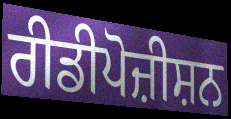
ਰੀਡੀਪੋਜ਼ੀਸ਼ਨ